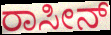
ರಾಸೀನ್